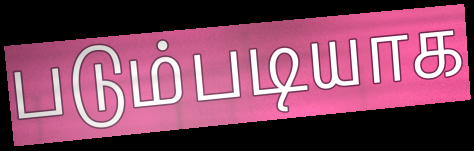
படும்படியாக